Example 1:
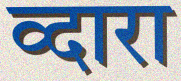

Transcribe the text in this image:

व्दारा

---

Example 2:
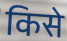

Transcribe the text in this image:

किसे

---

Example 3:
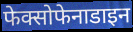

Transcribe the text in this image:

फेक्सोफेनाडाइन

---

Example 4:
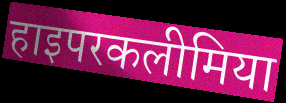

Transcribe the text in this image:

हाइपरकलीमिया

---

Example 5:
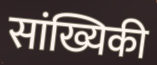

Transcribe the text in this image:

सांख्यिकी